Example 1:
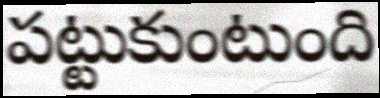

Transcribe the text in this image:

పట్టుకుంటుంది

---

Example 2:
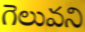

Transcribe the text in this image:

గెలువని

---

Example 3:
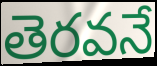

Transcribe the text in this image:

తెరవనే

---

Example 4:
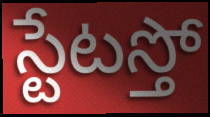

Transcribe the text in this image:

స్టేటస్తో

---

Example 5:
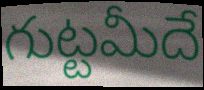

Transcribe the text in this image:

గుట్టమీదే